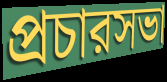
প্রচারসভা